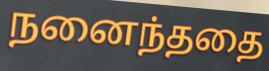
நனைந்ததை